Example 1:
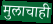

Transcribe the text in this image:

मुलाचाही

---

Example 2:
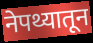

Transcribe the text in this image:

नेपथ्यातून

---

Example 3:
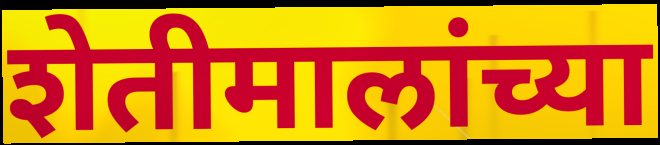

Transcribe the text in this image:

शेतीमालांच्या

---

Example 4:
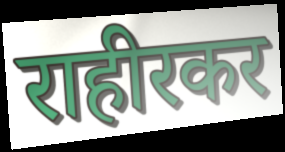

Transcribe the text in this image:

राहीरकर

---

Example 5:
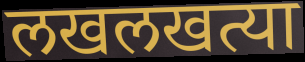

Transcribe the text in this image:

लखलखत्या